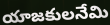
యాజకులనేమి